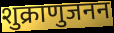
शुक्राणुजनन